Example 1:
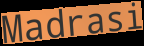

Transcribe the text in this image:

Madrasi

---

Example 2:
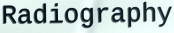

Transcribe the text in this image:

Radiography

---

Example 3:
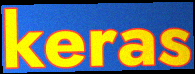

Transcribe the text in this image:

keras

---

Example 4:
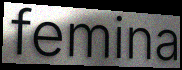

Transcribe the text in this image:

femina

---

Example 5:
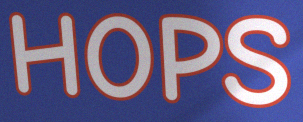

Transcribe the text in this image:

HOPS